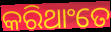
କରିଥାଂତେ